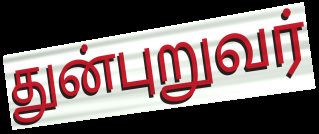
துன்புறுவர்